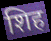
शिह